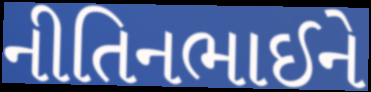
નીતિનભાઈને